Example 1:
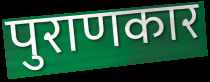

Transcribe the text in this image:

पुराणकार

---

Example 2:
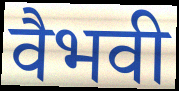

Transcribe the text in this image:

वैभवी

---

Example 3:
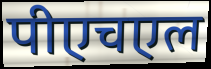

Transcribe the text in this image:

पीएचएल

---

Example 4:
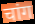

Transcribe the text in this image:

चांग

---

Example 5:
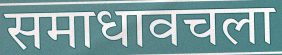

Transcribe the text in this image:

समाधावचला